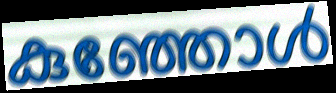
കുഞ്ഞോൾ